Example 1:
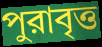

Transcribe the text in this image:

পুরাবৃত্ত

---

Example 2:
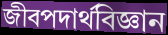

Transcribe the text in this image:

জীবপদার্থবিজ্ঞান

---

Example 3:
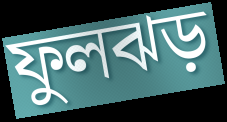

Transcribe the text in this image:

ফুলঝড়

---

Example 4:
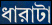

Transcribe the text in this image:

ধারাটা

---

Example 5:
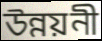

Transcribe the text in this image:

উন্নয়নী